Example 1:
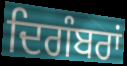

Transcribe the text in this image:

ਦਿਗੰਬਰਾਂ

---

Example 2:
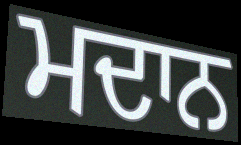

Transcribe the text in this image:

ਮਦਾਨ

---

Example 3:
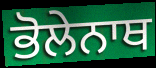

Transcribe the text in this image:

ਭੋਲੇਨਾਥ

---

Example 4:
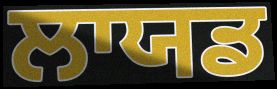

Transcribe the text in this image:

ਲਾਯਡ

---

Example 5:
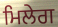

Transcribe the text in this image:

ਮਿਲੇਗ